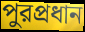
পুরপ্রধান